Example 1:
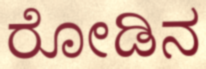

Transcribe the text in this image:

ರೋಡಿನ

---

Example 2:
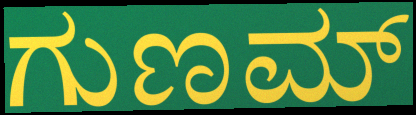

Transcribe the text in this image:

ಗುಣಮ್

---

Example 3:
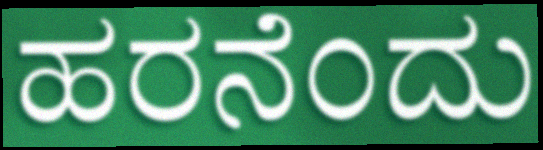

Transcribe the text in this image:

ಹರನೆಂದು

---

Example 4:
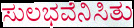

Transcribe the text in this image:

ಸುಲಭವೆನಿಸಿತು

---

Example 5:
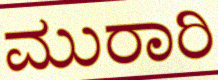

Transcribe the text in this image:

ಮುರಾರಿ